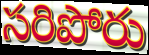
సరిపోరు